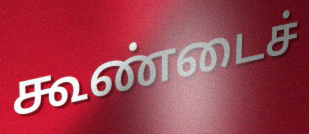
கூண்டைச்